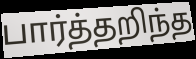
பார்த்தறிந்த